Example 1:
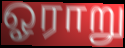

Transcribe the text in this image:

ஓராறு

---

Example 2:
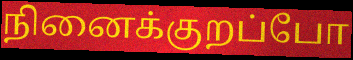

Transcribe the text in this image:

நினைக்குறப்போ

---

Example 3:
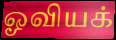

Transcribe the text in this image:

ஓவியக்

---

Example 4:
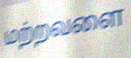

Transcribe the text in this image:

மற்றவளை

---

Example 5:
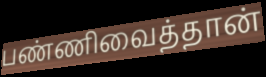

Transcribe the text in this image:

பண்ணிவைத்தான்